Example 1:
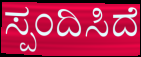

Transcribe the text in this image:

ಸ್ಪಂದಿಸಿದೆ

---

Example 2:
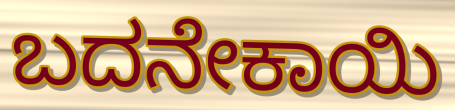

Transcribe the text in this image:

ಬದನೇಕಾಯಿ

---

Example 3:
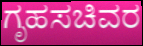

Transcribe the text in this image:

ಗೃಹಸಚಿವರ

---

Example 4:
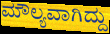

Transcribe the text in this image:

ಮೌಲ್ಯವಾಗಿದ್ದು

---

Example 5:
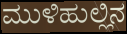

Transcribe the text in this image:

ಮುಳಿಹುಲ್ಲಿನ